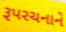
રૂપરચનાને